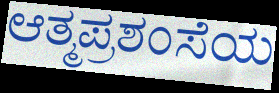
ಆತ್ಮಪ್ರಶಂಸೆಯ